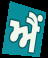
ਐੰ